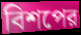
বিশপের